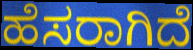
ಹೆಸರಾಗಿದೆ